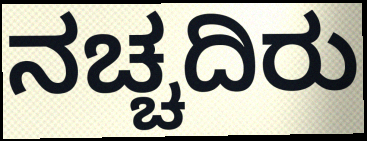
ನಚ್ಚದಿರು